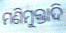
ମଣିମୁକ୍ତାଦି